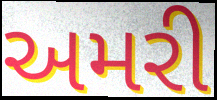
અમરી